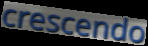
crescendo